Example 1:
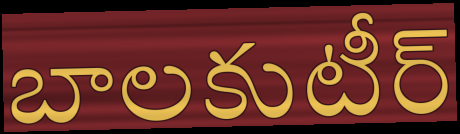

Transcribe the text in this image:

బాలకుటీర్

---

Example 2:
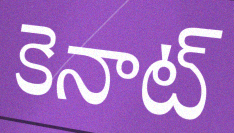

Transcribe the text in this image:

కెనాట్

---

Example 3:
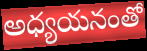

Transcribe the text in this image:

అధ్యయనంతో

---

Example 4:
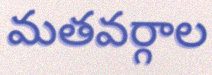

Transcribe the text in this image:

మతవర్గాల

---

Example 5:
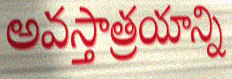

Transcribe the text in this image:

అవస్తాత్రయాన్ని